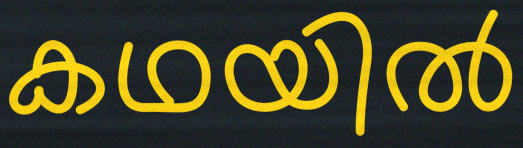
കഥയിൽ